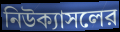
নিউক্যাসলের